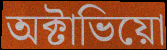
অক্টাভিয়ো